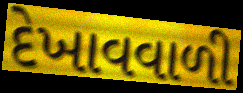
દેખાવવાળી